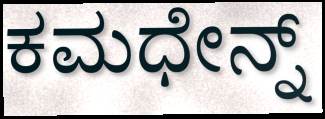
ಕಮಧೇನ್ನ್